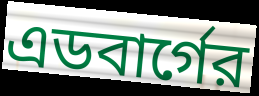
এডবার্গের